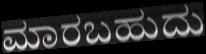
ಮಾರಬಹುದು